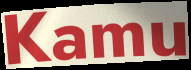
Kamu